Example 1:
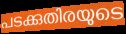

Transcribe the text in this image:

പടക്കുതിരയുടെ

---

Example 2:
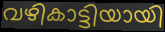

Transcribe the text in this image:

വഴികാട്ടിയായി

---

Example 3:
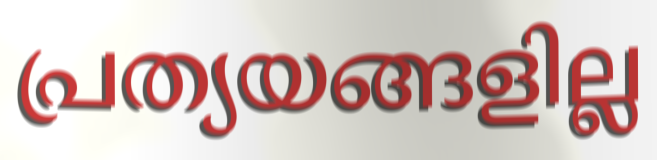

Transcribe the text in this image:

പ്രത്യയങ്ങളില്ല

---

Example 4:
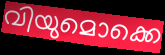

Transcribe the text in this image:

വിയുമൊക്കെ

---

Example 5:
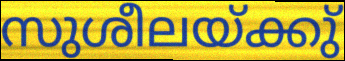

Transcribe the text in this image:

സുശീലയ്ക്കു്